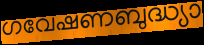
ഗവേഷണബുദ്ധ്യാ